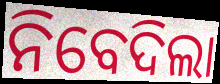
ନିବେଦିଲା